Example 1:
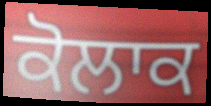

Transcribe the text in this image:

ਕੋਲਾਕ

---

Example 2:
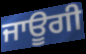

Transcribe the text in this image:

ਜਾਊਗੀ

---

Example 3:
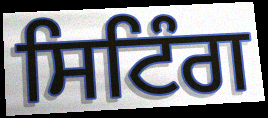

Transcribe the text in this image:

ਸਿਟਿੰਗ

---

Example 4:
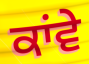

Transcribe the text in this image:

ਕਾਂਵੇ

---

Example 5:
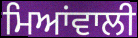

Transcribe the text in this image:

ਮਿਆਂਵਾਲੀ